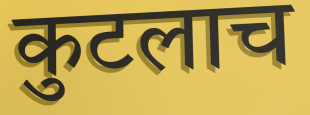
कुटलाच